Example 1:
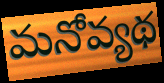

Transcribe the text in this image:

మనోవ్యథ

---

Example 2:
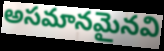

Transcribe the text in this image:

అసమానమైనవి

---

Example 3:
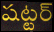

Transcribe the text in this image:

షట్టర్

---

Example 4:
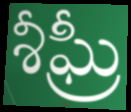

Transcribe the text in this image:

శీఘ్రీ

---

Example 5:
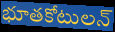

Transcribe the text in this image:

భూతకోటులన్